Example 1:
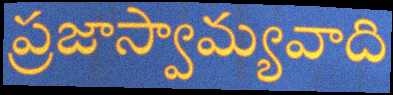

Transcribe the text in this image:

ప్రజాస్వామ్యవాది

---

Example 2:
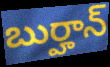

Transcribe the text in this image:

బుర్హాన్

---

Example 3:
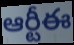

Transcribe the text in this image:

ఆర్టీఈ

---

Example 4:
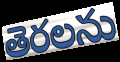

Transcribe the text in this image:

తెరలను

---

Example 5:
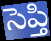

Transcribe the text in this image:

సెప్తి